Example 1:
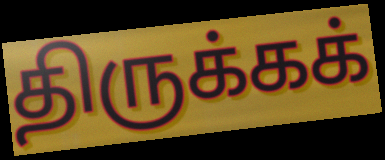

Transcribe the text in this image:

திருக்கக்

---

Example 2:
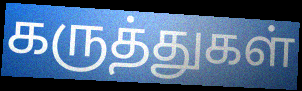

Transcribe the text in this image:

கருத்துகள்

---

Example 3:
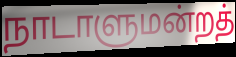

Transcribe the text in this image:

நாடாளுமன்றத்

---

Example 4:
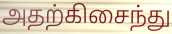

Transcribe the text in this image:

அதற்கிசைந்து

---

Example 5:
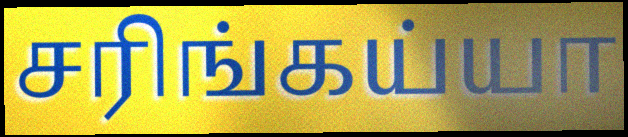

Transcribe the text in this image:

சரிங்கய்யா